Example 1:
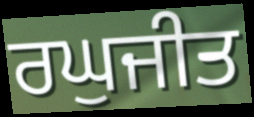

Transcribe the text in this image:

ਰਘੁਜੀਤ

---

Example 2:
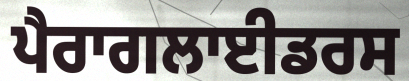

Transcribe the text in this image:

ਪੈਰਾਗਲਾਈਡਰਸ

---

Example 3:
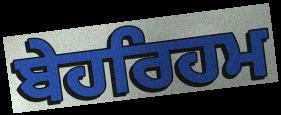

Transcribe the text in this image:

ਬੇਹਰਿਹਮ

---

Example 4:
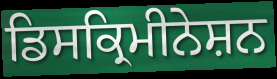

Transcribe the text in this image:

ਡਿਸਕ੍ਰਿਮੀਨੇਸ਼ਨ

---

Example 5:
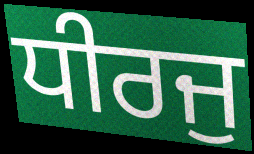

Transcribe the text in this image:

ਧੀਰਜੁ